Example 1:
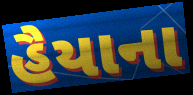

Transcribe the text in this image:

હૈયાના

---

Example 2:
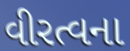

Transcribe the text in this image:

વીરત્વના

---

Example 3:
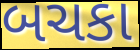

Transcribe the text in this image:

બચકા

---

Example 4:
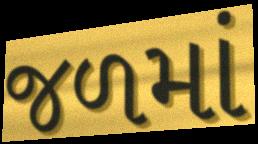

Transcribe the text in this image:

જળમાં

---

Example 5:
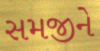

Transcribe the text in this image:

સમજીને